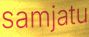
samjatu